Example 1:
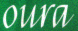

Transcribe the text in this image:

oura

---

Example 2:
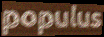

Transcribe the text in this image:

populus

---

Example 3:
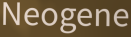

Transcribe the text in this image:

Neogene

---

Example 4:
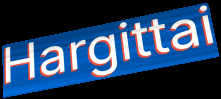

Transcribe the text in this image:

Hargittai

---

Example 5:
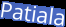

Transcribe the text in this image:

Patiala